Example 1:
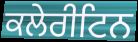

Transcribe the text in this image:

ਕਲੇਰੀਟਿਨ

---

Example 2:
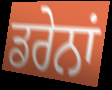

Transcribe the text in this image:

ਡਰੇਨਾਂ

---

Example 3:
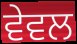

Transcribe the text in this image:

ਵੇਵਲ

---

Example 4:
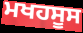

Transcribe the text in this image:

ਮਖਹਸੂਸ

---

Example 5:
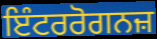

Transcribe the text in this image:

ਇੰਟਰਰੋਗਨਜ਼